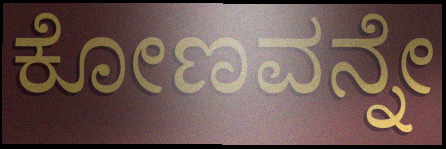
ಕೋಣವನ್ನೇ